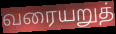
வரையறுத்